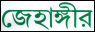
জেহাঙ্গীর